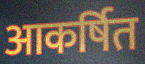
आकर्षित